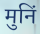
मुनिं